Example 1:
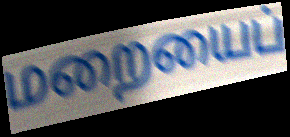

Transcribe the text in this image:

மறையைப்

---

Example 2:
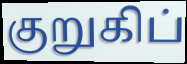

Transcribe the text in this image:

குறுகிப்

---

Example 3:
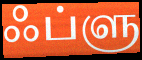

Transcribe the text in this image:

ஃப்ளு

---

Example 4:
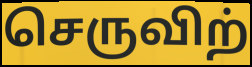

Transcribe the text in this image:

செருவிற்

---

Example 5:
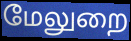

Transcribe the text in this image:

மேலுறை